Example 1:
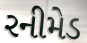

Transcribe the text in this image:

રનીમેડ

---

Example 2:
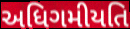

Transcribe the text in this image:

અધિગમીયતિ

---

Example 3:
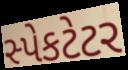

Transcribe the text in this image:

સ્પેકટેટર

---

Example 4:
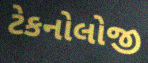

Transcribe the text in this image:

ટેકનોલોજી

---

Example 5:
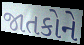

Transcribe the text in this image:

જાતકોને